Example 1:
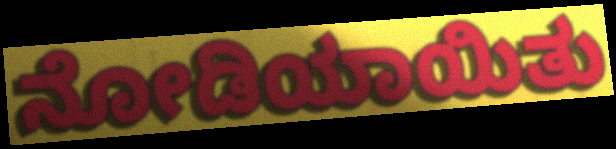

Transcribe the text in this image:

ನೋಡಿಯಾಯಿತು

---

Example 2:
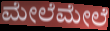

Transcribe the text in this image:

ಮೇಲೆಮೇಲೆ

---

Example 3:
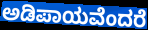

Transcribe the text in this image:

ಅಡಿಪಾಯವೆಂದರೆ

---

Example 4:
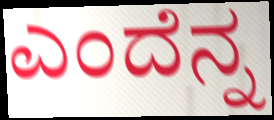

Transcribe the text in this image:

ಎಂದೆನ್ನ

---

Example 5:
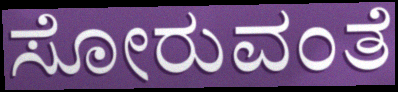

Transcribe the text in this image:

ಸೋರುವಂತೆ